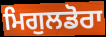
ਮਿਗੁਲਡੋਰਾ